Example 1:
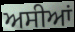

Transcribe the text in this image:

ਅਸੀਆਂ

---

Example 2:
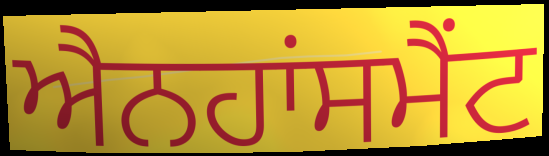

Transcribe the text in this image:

ਐਨਹਾਂਸਮੈਂਟ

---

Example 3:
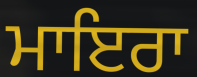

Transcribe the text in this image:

ਮਾਇਰਾ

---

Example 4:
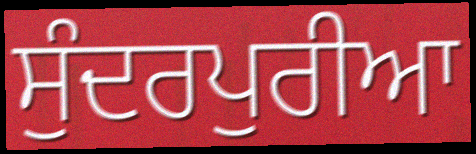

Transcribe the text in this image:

ਸੁੰਦਰਪੁਰੀਆ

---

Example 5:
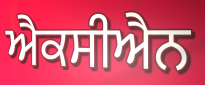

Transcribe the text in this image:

ਐਕਸੀਐਨ